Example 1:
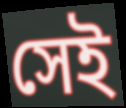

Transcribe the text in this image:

সেই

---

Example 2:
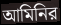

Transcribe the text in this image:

আমিনির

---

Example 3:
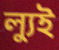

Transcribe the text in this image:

ল্যুই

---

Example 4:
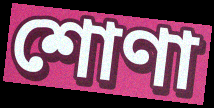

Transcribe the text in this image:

শোণা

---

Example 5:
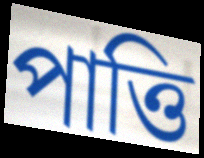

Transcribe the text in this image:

পাত্তি